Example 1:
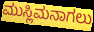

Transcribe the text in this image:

ಮುಸ್ಲಿಮನಾಗಲು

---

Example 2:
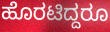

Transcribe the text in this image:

ಹೊರಟಿದ್ದರೂ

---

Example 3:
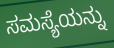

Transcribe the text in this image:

ಸಮಸ್ಯೆಯನ್ನು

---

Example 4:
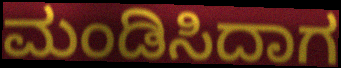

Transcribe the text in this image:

ಮಂಡಿಸಿದಾಗ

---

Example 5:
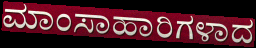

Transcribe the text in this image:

ಮಾಂಸಾಹಾರಿಗಳಾದ